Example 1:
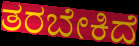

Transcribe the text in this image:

ತರಬೇಕಿದೆ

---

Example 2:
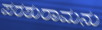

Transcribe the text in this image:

ಪರಶುರಾಮನು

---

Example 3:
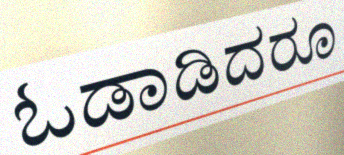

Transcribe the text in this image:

ಓಡಾಡಿದರೂ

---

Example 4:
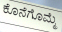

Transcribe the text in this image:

ಕೊನೆಗೊಮ್ಮೆ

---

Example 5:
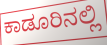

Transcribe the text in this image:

ಕಾಡೂರಿನಲ್ಲಿ